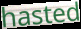
hasted